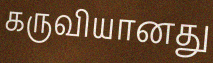
கருவியானது